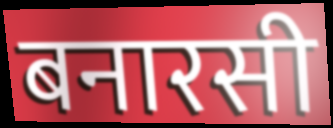
बनारसी